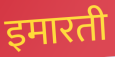
इमारती